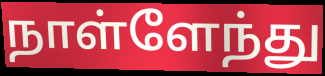
நாள்ளேந்து